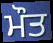
ਮੌਤ